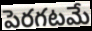
పెరగటమే